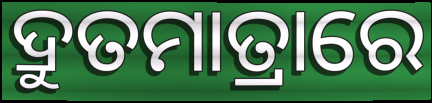
ଦ୍ରୁତମାତ୍ରାରେ